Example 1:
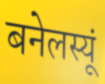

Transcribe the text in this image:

बनेलस्यूं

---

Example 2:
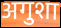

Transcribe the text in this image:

अगुशा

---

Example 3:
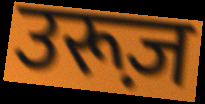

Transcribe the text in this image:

उरूज़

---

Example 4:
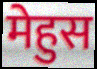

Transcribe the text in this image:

मेहुस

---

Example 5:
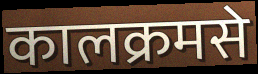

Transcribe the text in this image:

कालक्रमसे